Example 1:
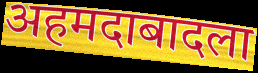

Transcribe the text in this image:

अहमदाबादला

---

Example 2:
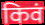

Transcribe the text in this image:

किवं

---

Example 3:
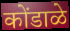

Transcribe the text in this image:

कोंडाळे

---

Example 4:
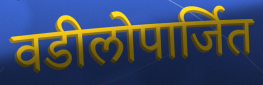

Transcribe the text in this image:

वडीलोपार्जित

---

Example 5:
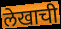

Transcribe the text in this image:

लेखाची